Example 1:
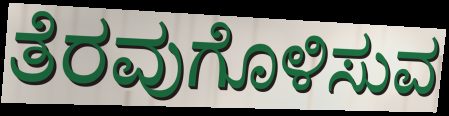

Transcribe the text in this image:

ತೆರವುಗೊಳಿಸುವ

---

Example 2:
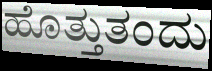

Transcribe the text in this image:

ಹೊತ್ತುತಂದು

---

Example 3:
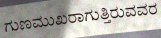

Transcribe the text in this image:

ಗುಣಮುಖರಾಗುತ್ತಿರುವವರ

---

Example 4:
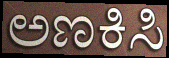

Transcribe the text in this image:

ಅಣಕಿಸಿ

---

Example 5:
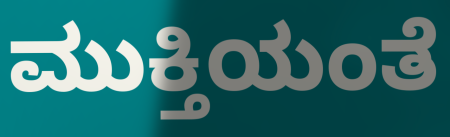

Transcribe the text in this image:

ಮುಕ್ತಿಯಂತೆ